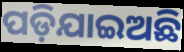
ପଡ଼ିଯାଇଅଛି